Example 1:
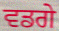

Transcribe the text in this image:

ਵਡਗੇ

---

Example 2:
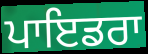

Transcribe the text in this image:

ਪਾਇਡਰਾ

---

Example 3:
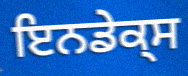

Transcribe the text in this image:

ਇਨਡੇਕ੍ਸ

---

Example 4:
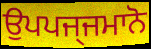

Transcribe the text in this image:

ਉਪਪਜ੍ਜਮਾਨੋ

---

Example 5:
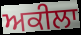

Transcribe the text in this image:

ਅਕੀਲਾ